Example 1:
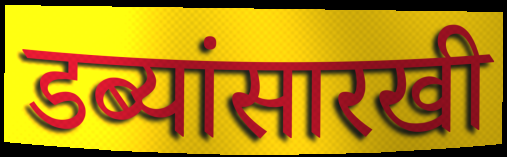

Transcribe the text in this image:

डब्यांसारखी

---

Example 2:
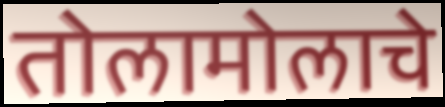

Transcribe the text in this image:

तोलामोलाचे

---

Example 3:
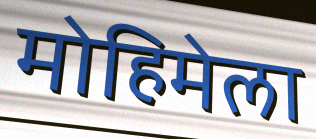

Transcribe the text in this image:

मोहिमेला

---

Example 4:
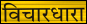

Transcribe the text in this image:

विचारधारा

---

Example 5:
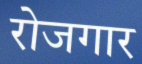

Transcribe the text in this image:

रोजगार